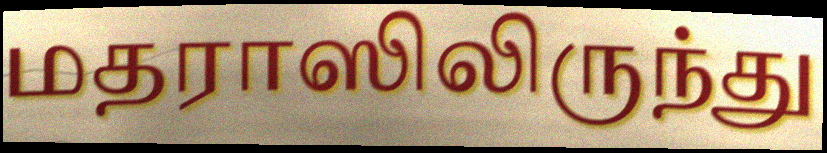
மதராஸிலிருந்து